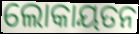
ଲୋକାୟତନ